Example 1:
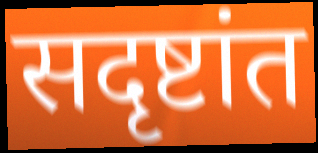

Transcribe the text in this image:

सदृष्टांत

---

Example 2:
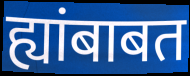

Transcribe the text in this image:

ह्यांबाबत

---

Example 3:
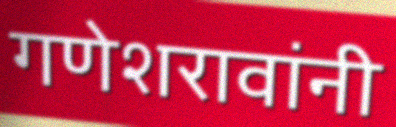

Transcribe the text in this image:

गणेशरावांनी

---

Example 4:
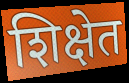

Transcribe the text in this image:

शिक्षेत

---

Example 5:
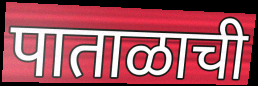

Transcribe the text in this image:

पाताळाची